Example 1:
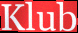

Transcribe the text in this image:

Klub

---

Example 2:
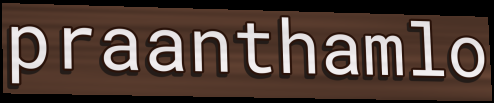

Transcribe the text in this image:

praanthamlo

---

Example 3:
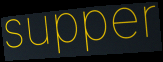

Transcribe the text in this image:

supper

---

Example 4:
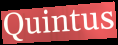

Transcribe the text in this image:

Quintus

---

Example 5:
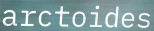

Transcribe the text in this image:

arctoides